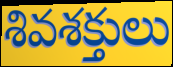
శివశక్తులు